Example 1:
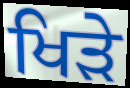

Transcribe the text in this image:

ਖਿੜੇ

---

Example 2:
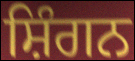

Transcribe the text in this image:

ਸ਼ਿੰਗਨ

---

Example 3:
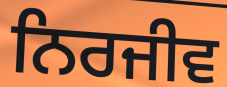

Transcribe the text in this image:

ਨਿਰਜੀਵ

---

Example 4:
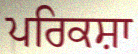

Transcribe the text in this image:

ਪਰਿਕਸ਼ਾ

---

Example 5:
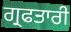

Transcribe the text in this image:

ਗ੍ਰਫਤਾਰੀ